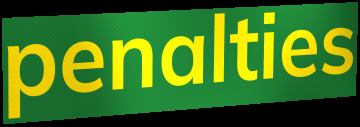
penalties